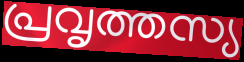
പ്രവൃത്തസ്യ